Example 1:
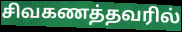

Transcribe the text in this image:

சிவகணத்தவரில்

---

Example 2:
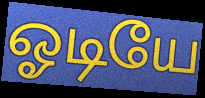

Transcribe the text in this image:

ஓடியே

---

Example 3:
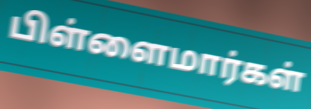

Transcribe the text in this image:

பிள்ளைமார்கள்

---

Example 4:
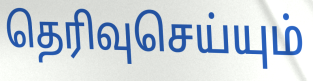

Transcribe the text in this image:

தெரிவுசெய்யும்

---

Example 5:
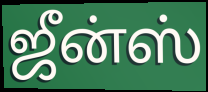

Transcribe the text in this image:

ஜீன்ஸ்